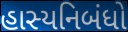
હાસ્યનિબંધો